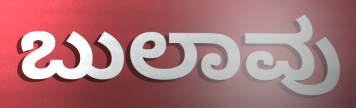
ಬುಲಾವು